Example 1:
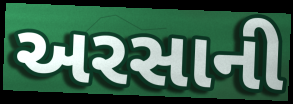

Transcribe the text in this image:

અરસાની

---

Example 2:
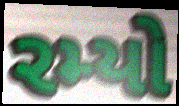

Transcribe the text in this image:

રમ્યો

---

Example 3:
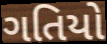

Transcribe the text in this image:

ગતિયો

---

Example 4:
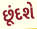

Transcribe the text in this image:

છૂંદશે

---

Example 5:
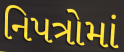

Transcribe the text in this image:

નિપત્રોમાં